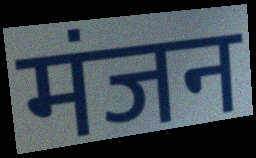
मंजन